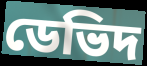
ডেভিদ